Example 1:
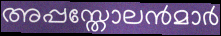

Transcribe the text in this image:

അപ്പസ്തോലൻമാർ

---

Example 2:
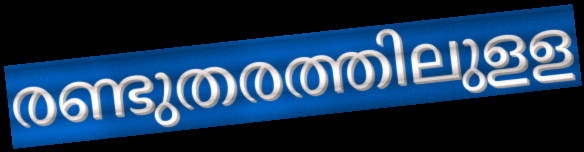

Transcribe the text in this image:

രണ്ടുതരത്തിലുളള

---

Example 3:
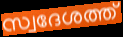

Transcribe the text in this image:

സ്വദേശത്ത്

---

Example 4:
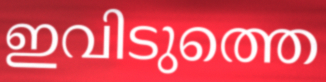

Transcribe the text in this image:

ഇവിടുത്തെ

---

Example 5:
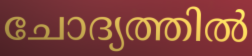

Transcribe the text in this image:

ചോദ്യത്തിൽ